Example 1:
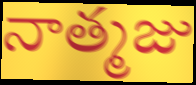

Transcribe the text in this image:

నాత్మజు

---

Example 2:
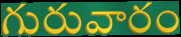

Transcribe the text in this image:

గురువారం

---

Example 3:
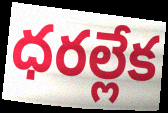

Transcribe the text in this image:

ధరల్లేక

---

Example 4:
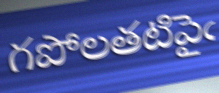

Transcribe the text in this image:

గపోలతటిపైఁ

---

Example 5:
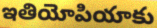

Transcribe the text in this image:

ఇతియోపియాకు